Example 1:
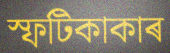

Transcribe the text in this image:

স্ফটিকাকাৰ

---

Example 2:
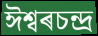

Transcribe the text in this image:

ঈশ্বৰচন্দ্ৰ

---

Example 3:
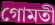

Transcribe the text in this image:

গোমতী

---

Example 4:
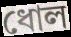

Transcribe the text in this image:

ধোল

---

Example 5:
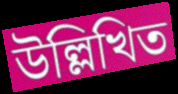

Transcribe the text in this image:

উল্লিখিত